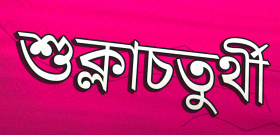
শুক্লাচতুৰ্থী